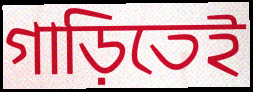
গাড়িতেই